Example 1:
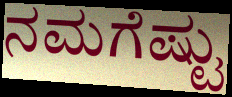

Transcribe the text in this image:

ನಮಗೆಷ್ಟು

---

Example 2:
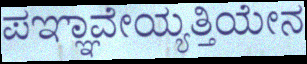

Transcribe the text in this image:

ಪಞ್ಞಾವೇಯ್ಯತ್ತಿಯೇನ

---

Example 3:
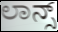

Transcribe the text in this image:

ಲಾನ್ಸ್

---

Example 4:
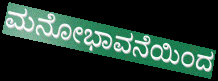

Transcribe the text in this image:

ಮನೋಭಾವನೆಯಿಂದ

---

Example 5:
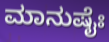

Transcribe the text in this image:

ಮಾನುಷೈಃ